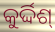
କୁର୍ଦ୍ଦିଶ୍